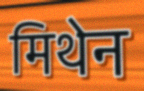
मिथेन